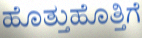
ಹೊತ್ತುಹೊತ್ತಿಗೆ